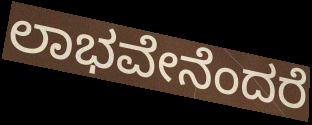
ಲಾಭವೇನೆಂದರೆ